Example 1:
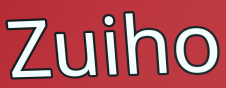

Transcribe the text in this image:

Zuiho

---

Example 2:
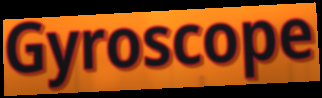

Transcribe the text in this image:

Gyroscope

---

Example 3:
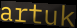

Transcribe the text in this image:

artuk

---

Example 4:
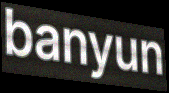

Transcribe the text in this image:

banyun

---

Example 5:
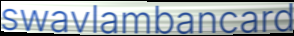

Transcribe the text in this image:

swavlambancard